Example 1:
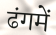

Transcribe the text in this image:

ढंगमें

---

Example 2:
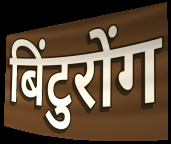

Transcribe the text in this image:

बिंटुरोंग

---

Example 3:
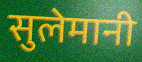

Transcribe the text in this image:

सुलेमानी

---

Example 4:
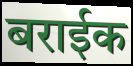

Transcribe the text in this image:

बराईक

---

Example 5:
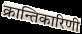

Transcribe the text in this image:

क्रान्तिकारिणी